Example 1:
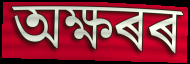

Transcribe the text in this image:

অক্ষৰৰ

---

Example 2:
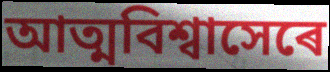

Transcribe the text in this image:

আত্মবিশ্বাসেৰে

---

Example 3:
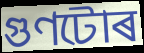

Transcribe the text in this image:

গুণটোৰ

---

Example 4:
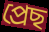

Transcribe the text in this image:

প্ৰেছ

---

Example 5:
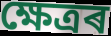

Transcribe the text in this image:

ক্ষেত্ৰৰ